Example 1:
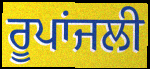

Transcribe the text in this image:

ਰੂਪਾਂਜਲੀ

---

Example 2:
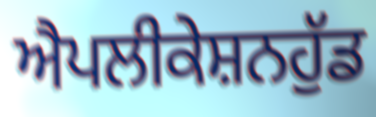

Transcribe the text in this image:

ਐਪਲੀਕੇਸ਼ਨਹੁੱਡ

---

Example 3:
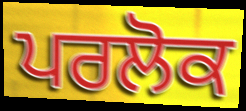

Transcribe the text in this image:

ਪਰਲੋਕ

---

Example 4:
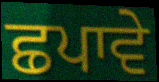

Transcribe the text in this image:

ਛਪਾਵੇ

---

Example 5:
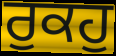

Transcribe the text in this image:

ਰੁਕਹੁ